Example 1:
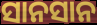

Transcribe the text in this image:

ସାନସାନ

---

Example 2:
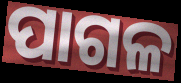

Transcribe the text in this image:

ପାଗଳ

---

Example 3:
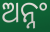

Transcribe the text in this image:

ଅନ୍ନଂ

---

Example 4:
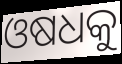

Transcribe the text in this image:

ଓଷଧକୁ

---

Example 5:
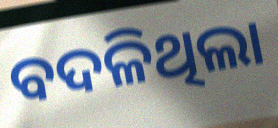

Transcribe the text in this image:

ବଦଳିଥିଲା